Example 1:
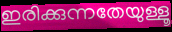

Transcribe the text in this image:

ഇരിക്കുന്നതേയുള്ളൂ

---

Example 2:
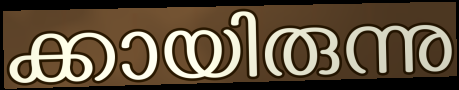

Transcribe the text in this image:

ക്കായിരുന്നു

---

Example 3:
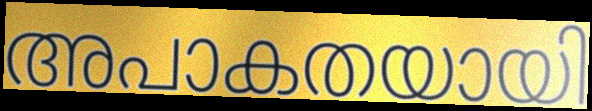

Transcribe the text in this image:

അപാകതയായി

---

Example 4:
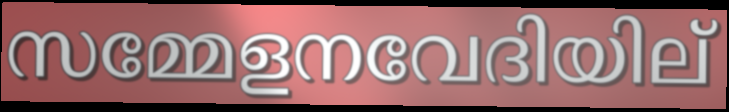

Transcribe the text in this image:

സമ്മേളനവേദിയില്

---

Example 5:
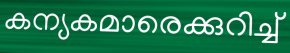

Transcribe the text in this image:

കന്യകമാരെക്കുറിച്ച്